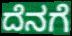
ದೆನಗೆ